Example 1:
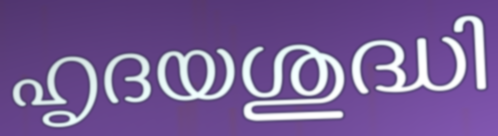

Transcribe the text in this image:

ഹൃദയശുദ്ധി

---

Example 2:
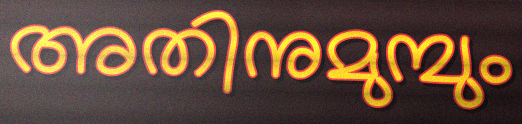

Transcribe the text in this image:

അതിനുമുമ്പും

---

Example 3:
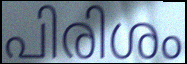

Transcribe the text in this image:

പിരിശം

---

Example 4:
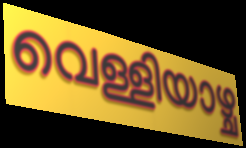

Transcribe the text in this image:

വെള്ളിയാഴ്ച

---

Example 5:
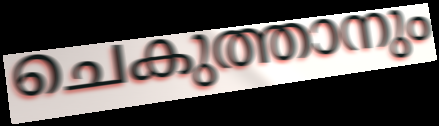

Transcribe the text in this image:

ചെകുത്താനും